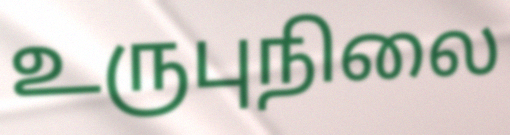
உருபுநிலை